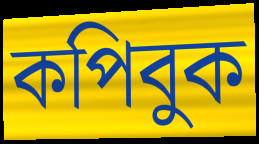
কপিবুক